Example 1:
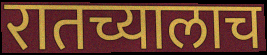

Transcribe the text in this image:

रातच्यालाच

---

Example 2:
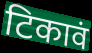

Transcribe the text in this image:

टिकावं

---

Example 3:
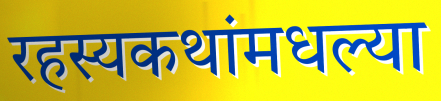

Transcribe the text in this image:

रहस्यकथांमधल्या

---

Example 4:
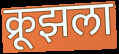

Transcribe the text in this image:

क्रूझला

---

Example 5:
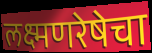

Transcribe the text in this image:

लक्ष्मणरेषेचा